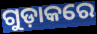
ଗୁଡ଼ାକରେ